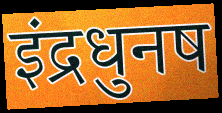
इंद्रधुनष